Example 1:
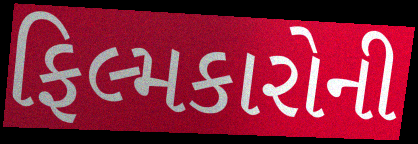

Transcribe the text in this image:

ફિલ્મકારોની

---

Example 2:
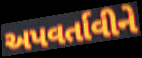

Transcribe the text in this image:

અપવર્તાવીને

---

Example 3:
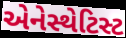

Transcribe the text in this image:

એનેસ્થેટિસ્ટ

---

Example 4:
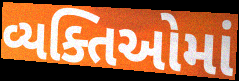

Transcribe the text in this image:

વ્યક્તિઓમાં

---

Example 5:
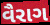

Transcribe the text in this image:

વૈરાગ